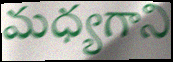
మధ్యగాని